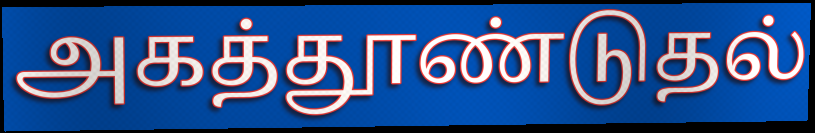
அகத்தூண்டுதல்